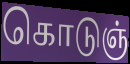
கொடுஞ்